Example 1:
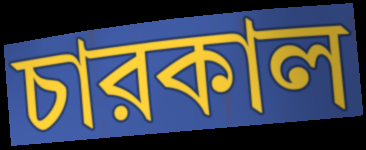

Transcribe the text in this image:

চারকাল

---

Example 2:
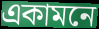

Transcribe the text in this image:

একামনে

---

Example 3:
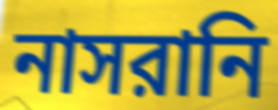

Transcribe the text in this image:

নাসরানি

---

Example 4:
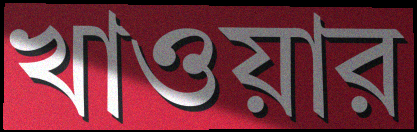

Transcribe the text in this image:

খাওয়ার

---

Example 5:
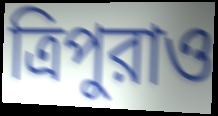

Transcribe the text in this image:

ত্রিপুরাও